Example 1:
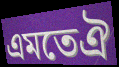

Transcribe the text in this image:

এমতেঐ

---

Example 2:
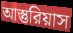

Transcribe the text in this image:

আস্তুরিয়াস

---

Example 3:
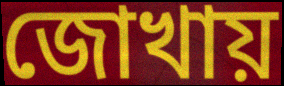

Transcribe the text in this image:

জোখায়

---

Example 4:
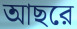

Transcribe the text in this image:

আছরে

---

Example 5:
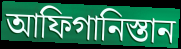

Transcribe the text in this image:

আফিগানিস্তান